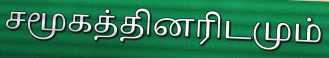
சமூகத்தினரிடமும்